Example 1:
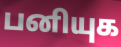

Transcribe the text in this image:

பனியுக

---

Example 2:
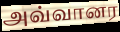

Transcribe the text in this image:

அவ்வானர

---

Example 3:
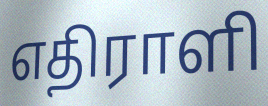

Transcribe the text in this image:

எதிராளி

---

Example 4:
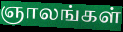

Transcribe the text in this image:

ஞாலங்கள்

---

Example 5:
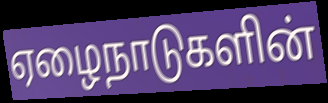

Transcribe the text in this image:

ஏழைநாடுகளின்